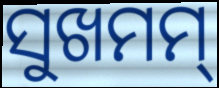
ସୁଖମମ୍